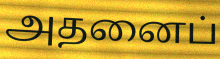
அதனைப்